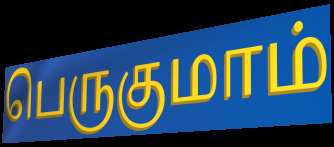
பெருகுமாம்